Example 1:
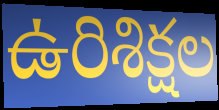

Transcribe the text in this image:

ఉరిశిక్షల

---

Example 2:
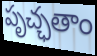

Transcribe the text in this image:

పృచ్ఛతాం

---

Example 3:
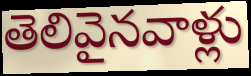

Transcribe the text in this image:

తెలివైనవాళ్లు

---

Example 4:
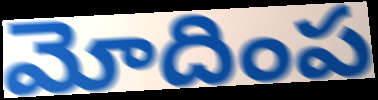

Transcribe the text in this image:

మోదింప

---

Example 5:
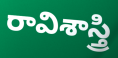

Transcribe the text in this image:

రావిశాస్త్రి